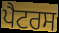
ਪੈਟਰਸ